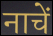
नाचें